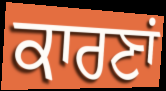
ਕਾਰਣਾਂ